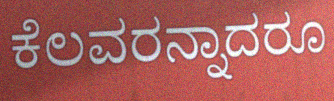
ಕೆಲವರನ್ನಾದರೂ